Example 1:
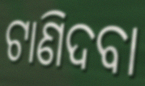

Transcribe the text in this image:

ଟାଣିଦବା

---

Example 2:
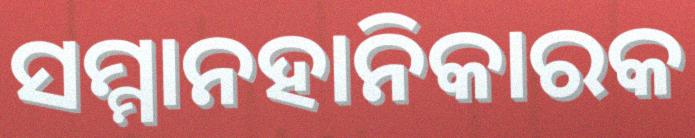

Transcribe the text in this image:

ସମ୍ମାନହାନିକାରକ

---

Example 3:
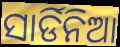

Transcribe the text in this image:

ସାର୍ଡିନିଆ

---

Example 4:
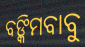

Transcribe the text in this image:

ବଙ୍କିମବାବୁ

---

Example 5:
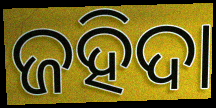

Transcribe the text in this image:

ଜହିଦା